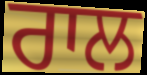
ਰਾਲ